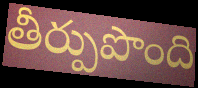
తీర్పుపొంది